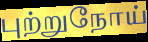
புற்றுநோய்